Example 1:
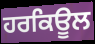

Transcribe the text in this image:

ਹਰਕਿਊਲ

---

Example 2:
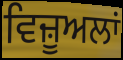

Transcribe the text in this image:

ਵਿਜ਼ੂਅਲਾਂ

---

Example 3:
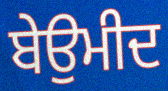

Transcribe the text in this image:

ਬੇਉਮੀਦ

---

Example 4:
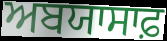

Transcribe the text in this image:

ਅਬਯਾਸਾਫ਼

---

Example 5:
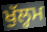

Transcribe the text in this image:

ਖੁੱਲ੍ਹਮ